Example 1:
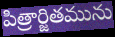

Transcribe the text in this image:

పిత్రార్జితమును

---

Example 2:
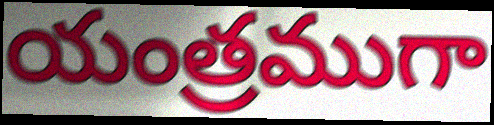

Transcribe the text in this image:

యంత్రముగా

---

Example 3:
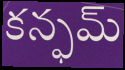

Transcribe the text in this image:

కన్ఫమ్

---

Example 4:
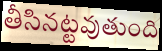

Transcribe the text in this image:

తీసినట్టవుతుంది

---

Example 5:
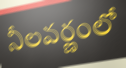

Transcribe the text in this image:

నీలవర్ణంలో